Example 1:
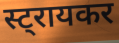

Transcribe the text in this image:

स्ट्रायकर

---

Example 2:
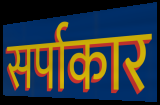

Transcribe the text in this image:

सर्पाकार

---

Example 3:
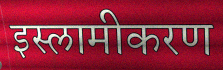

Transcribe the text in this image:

इस्लामीकरण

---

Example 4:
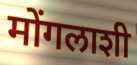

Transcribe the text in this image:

मोंगलाशी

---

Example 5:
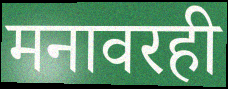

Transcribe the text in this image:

मनावरही